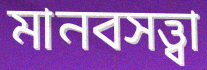
মানবসত্ত্বা